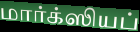
மார்க்ஸியப்